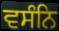
ਵਸੰਨਿ